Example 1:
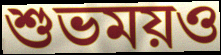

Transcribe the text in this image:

শুভময়ও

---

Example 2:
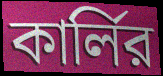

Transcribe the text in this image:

কার্লির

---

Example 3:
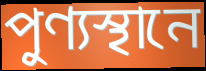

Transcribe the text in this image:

পুণ্যস্থানে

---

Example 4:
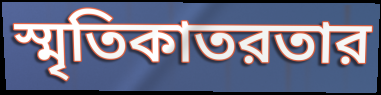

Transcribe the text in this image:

স্মৃতিকাতরতার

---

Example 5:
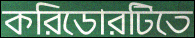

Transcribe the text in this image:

করিডোরটিতে